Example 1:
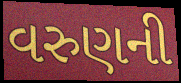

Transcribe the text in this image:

વરુણની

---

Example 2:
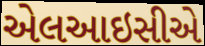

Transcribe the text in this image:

એલઆઇસીએ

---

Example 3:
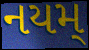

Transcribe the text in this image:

નયમ્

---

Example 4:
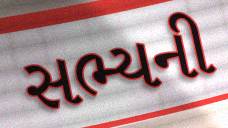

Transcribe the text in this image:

સભ્યની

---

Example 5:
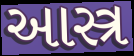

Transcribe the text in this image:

આસ્ત્ર